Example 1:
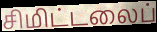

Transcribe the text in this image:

சிமிட்டலைப்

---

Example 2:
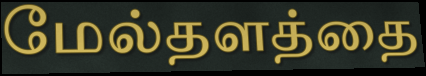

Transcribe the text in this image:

மேல்தளத்தை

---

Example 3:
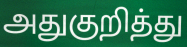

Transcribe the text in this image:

அதுகுறித்து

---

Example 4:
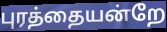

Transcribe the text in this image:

புரத்தையன்றே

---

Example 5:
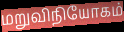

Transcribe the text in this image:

மறுவிநியோகம்